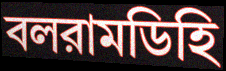
বলরামডিহি